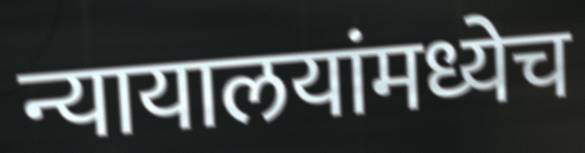
न्यायालयांमध्येच